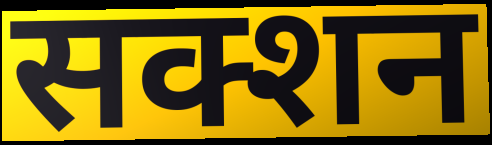
सक्शन